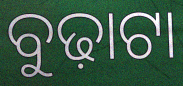
ବୁଢ଼ାଟା